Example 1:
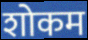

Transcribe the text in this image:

शोकम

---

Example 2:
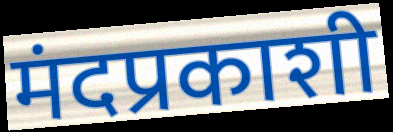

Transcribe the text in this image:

मंदप्रकाशी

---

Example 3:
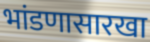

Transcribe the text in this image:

भांडणासारखा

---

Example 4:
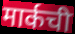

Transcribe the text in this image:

मार्कची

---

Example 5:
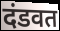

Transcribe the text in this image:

दंडवत